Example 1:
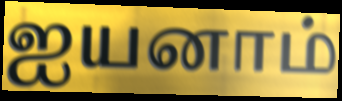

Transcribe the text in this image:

ஐயனாம்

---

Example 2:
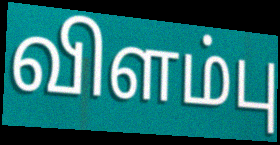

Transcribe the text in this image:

விளம்பு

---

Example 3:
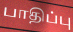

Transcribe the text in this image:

பாதிப்பு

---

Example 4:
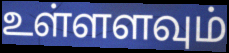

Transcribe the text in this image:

உள்ளளவும்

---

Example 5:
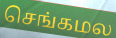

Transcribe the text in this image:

செங்கமல